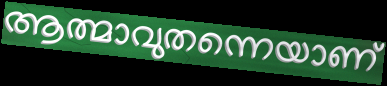
ആത്മാവുതന്നെയാണ്